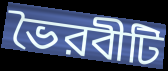
ভৈরবীটি